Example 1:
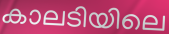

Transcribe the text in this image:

കാലടിയിലെ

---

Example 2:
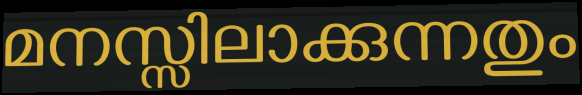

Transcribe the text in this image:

മനസ്സിലാക്കുന്നതും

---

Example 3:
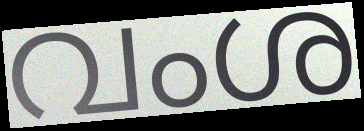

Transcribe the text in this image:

വംശ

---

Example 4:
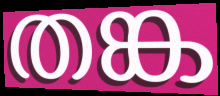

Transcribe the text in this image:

തങ്ക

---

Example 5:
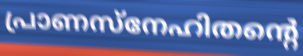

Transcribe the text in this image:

പ്രാണസ്നേഹിതന്റെ